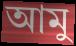
আমু